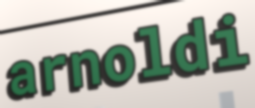
arnoldi